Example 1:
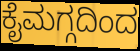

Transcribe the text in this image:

ಕೈಮಗ್ಗದಿಂದ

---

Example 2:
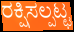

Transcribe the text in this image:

ರಕ್ಷಿಸಲ್ಪಟ್ಟ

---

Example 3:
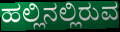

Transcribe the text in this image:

ಹಲ್ಲಿನಲ್ಲಿರುವ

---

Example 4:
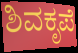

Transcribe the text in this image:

ಶಿವಕೃಪೆ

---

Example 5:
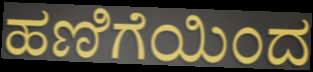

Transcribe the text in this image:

ಹಣಿಗೆಯಿಂದ